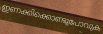
ഇണക്കിക്കൊണ്ടുപോവുക